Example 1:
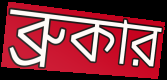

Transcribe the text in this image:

ব্রুকার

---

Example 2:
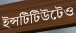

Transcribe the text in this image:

ইন্সটিটিউটেও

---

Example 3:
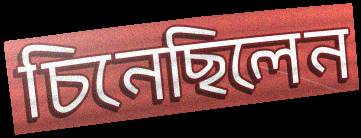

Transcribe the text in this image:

চিনেছিলেন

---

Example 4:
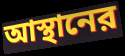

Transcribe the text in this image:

আস্থানের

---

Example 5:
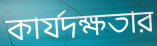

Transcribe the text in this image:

কার্যদক্ষতার